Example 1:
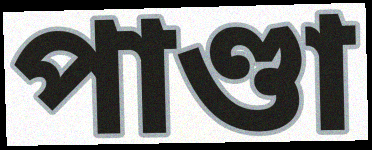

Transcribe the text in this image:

পাণ্ডা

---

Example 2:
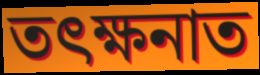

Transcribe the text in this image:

তৎক্ষনাত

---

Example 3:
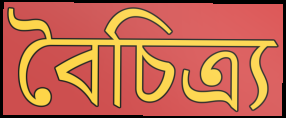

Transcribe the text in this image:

বৈচিত্ৰ্য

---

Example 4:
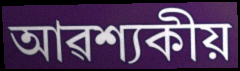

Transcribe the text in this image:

আৱশ্যকীয়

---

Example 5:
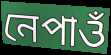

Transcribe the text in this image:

নেপাওঁ